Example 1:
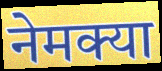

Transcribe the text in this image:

नेमक्या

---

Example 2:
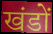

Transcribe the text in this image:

खंडों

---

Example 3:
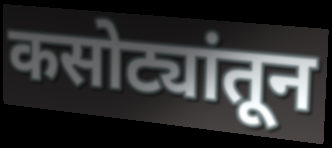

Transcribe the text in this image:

कसोट्यांतून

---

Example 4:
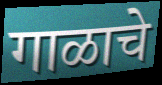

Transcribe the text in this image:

गाळाचे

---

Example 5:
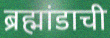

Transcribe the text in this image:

ब्रह्मांडाची